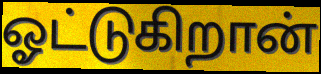
ஓட்டுகிறான்